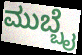
ಮುಬ್ಬೈ